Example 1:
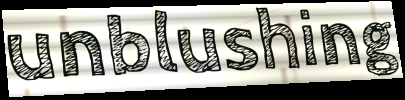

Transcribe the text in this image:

unblushing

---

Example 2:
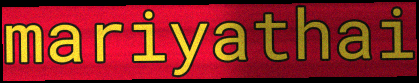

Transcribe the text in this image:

mariyathai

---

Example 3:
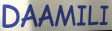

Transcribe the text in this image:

DAAMILI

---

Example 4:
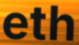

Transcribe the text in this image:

eth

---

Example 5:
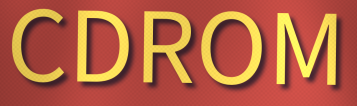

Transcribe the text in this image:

CDROM